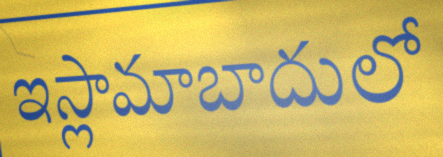
ఇస్లామాబాదులో